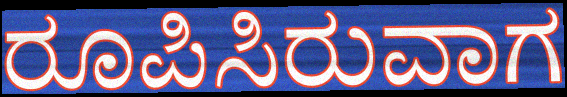
ರೂಪಿಸಿರುವಾಗ